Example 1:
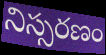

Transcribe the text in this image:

నిస్సరణం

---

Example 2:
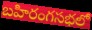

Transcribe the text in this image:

బహిరంగసభలో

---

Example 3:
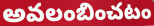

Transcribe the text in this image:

అవలంబించటం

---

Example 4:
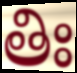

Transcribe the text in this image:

తిః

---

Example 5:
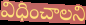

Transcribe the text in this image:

విధించాలని